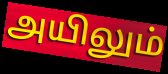
அயிலும்